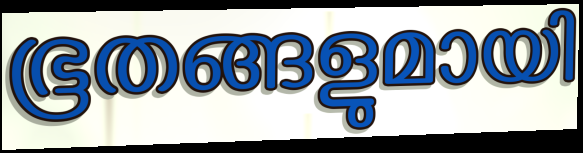
ഭൂതങ്ങളുമായി